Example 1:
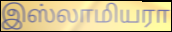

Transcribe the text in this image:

இஸ்லாமியரா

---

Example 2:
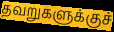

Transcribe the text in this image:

தவறுகளுக்குச்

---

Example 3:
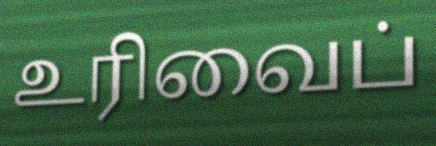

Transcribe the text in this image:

உரிவைப்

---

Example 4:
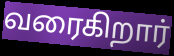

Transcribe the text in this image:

வரைகிறார்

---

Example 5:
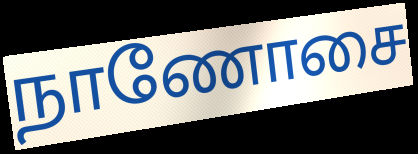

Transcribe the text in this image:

நாணோசை